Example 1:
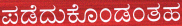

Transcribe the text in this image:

ಪಡೆದುಕೊಂಡಂತಹ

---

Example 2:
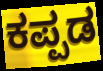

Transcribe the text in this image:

ಕಪ್ಪಡ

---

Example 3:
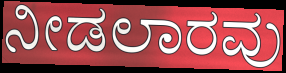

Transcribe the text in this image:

ನೀಡಲಾರವು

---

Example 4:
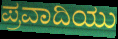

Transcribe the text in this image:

ಪ್ರವಾದಿಯು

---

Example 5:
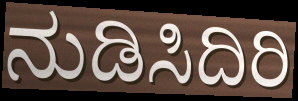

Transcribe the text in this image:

ನುಡಿಸಿದಿರಿ